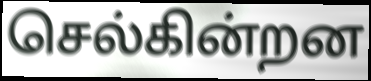
செல்கின்றன